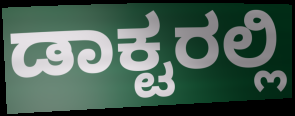
ಡಾಕ್ಟರಲ್ಲಿ